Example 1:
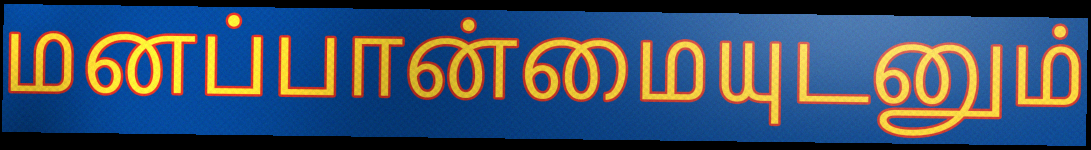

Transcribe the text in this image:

மனப்பான்மையுடனும்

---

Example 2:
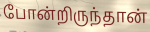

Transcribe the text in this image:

போன்றிருந்தான்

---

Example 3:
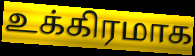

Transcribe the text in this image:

உக்கிரமாக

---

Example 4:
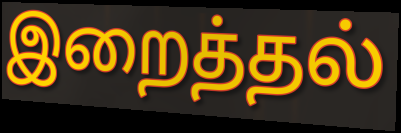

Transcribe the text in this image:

இறைத்தல்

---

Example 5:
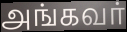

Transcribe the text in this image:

அங்கவர்